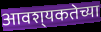
आवश्यकतेच्या